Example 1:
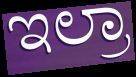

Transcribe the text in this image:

ಇಲ್ರಾ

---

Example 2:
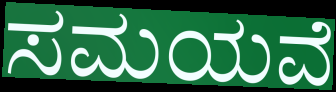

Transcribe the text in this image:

ಸಮಯವೆ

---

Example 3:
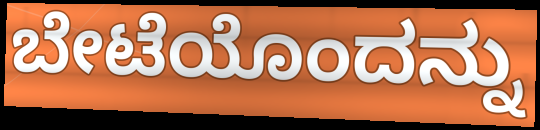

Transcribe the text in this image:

ಬೇಟೆಯೊಂದನ್ನು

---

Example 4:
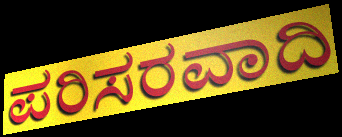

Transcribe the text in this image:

ಪರಿಸರವಾದಿ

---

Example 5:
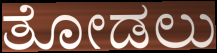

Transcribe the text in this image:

ತೋಡಲು